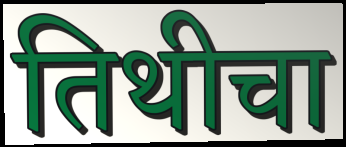
तिथीचा